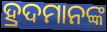
ହ୍ରଦମାନଙ୍କ